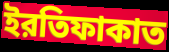
ইরতিফাকাত